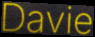
Davie